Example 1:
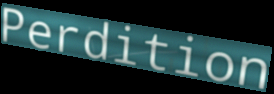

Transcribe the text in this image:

Perdition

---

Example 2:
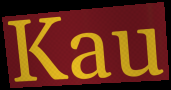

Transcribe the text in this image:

Kau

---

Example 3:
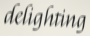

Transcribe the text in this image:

delighting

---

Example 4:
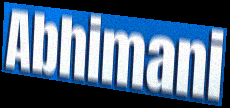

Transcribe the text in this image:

Abhimani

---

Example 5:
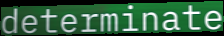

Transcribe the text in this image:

determinate